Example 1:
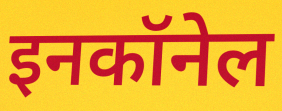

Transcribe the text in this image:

इनकॉनेल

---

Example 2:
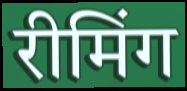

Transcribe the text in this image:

रीमिंग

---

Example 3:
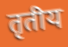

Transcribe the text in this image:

तृतीय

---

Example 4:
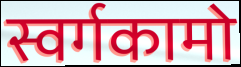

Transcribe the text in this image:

स्वर्गकामो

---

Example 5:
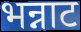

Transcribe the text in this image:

भन्नाट